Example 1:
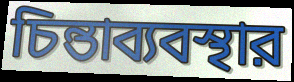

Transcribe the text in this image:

চিন্তাব্যবস্থার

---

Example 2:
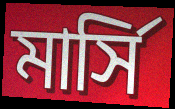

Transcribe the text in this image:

মার্সি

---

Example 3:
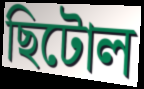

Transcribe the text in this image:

ছিটোল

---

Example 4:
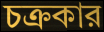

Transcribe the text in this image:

চক্রকার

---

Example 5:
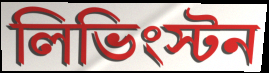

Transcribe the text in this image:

লিভিংস্টন